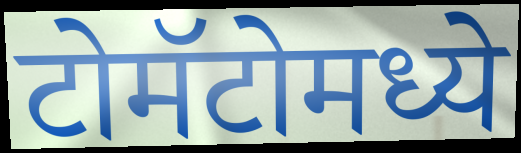
टोमॅटोमध्ये